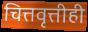
चित्तवृत्तीही